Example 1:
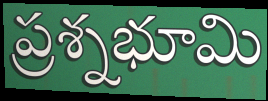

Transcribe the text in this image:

ప్రశ్నభూమి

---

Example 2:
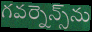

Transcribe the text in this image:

గవర్నెన్స్‌ను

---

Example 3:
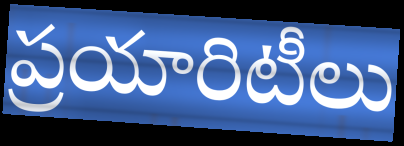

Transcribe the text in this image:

ప్రయారిటీలు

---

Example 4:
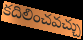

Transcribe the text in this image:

కదిలించవచ్చు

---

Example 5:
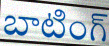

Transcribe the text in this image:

బాటింగ్